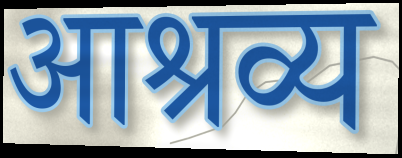
आश्रव्य